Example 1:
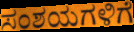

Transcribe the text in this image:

ಸಂಶಯಗಳಿಗೆ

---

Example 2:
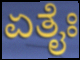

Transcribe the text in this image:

ಏತೈಃ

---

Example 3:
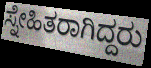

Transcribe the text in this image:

ಸ್ನೇಹಿತರಾಗಿದ್ದರು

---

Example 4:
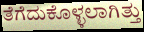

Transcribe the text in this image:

ತೆಗೆದುಕೊಳ್ಳಲಾಗಿತ್ತು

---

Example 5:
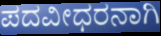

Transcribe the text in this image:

ಪದವೀಧರನಾಗಿ